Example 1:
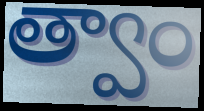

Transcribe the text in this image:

త్వాం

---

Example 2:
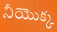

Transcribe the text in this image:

నీయొక్క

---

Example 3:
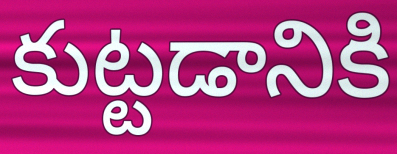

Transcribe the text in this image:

కుట్టడానికి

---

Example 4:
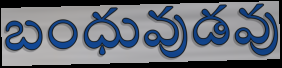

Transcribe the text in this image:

బంధువుడవు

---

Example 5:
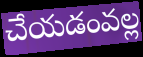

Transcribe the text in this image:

చేయడంవల్ల